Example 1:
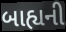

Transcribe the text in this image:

બાહ્યની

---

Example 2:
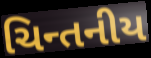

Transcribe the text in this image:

ચિન્તનીય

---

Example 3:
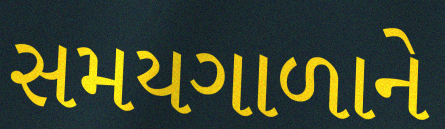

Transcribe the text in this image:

સમયગાળાને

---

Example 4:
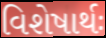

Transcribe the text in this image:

વિશેષાર્થઃ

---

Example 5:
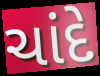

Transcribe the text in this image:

ચાંદે